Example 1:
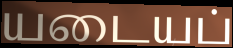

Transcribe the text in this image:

யடையப்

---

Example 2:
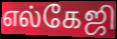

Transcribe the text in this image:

எல்கேஜி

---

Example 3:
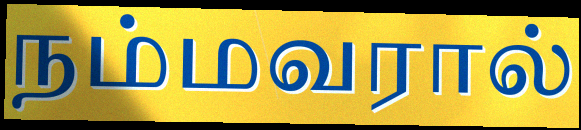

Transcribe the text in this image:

நம்மவரால்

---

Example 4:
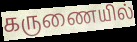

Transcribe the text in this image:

கருணையில்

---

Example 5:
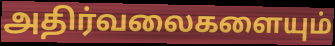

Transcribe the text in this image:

அதிர்வலைகளையும்